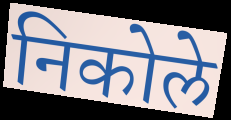
निकोले